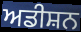
ਅਡੀਸ਼ਨ